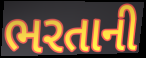
ભરતાની